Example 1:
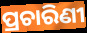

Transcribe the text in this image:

ପ୍ରଚାରିଣୀ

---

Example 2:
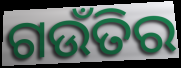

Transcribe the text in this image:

ଗଉଁତିର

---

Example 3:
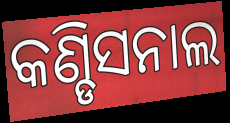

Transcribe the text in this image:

କଣ୍ଡିସନାଲ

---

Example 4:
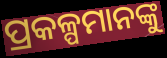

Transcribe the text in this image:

ପ୍ରକଳ୍ପମାନଙ୍କୁ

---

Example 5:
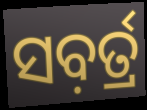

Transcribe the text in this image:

ସବ଼ର୍ତ୍ର